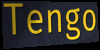
Tengo